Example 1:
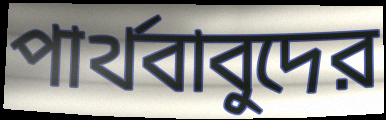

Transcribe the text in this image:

পার্থবাবুদের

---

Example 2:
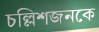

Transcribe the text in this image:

চল্লিশজনকে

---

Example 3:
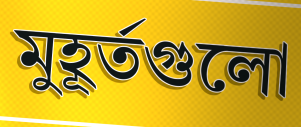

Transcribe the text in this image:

মুহূর্তগুলো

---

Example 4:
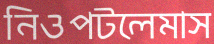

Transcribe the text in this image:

নিওপটলেমাস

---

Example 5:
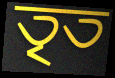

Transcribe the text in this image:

তৃত